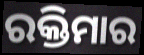
ରକ୍ତିମାର